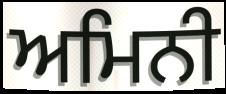
ਅਮਿਨੀ